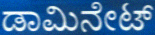
ಡಾಮಿನೇಟ್